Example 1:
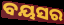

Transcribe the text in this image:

ବୟସର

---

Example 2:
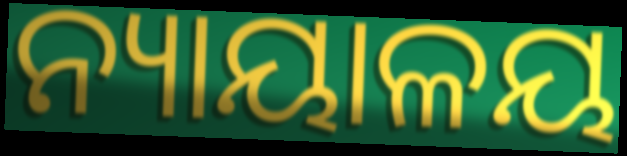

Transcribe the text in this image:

ନ୍ୟାୟାଳୟ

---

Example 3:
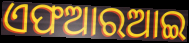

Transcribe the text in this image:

ଏଫଆରଆଇ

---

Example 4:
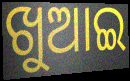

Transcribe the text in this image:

ଖୁଆଇ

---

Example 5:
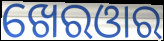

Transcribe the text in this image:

ଖେରଓାର